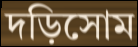
দড়িসোম